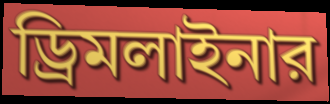
ড্রিমলাইনার